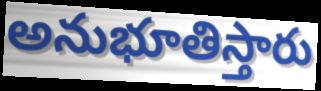
అనుభూతిస్తారు